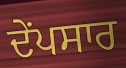
ਦੇਂਪਸਾਰ